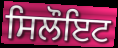
ਸਿਲੌਇਟ